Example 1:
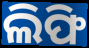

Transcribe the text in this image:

ଲିଫି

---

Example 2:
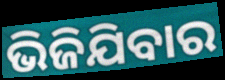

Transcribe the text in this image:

ଭିଜିଯିବାର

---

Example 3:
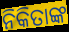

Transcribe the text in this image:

ନିକିତାଙ୍କ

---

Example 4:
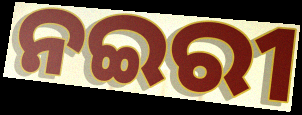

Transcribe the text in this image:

ନଇରୀ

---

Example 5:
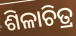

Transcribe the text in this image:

ଶିଳାଚିତ୍ର